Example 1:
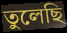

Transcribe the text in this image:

তুলেছি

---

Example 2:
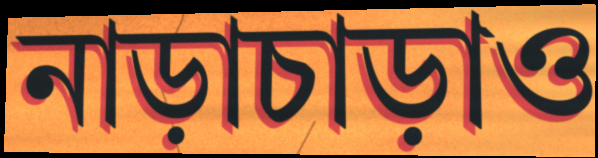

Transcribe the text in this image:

নাড়াচাড়াও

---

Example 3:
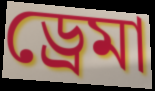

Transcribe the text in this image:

ড্রেমা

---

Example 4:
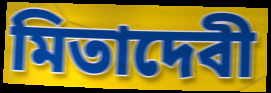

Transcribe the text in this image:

মিতাদেবী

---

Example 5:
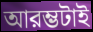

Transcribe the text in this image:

আরম্ভটাই